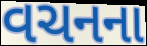
વચનના